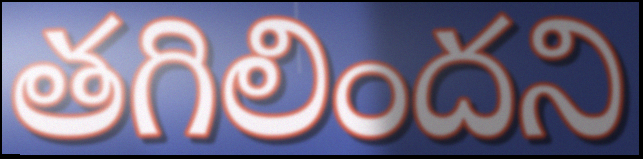
తగిలిందని